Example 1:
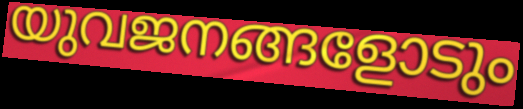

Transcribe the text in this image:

യുവജനങ്ങളോടും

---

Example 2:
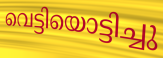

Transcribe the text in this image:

വെട്ടിയൊട്ടിച്ചു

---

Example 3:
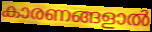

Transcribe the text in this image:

കാരണങ്ങളാൽ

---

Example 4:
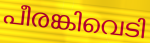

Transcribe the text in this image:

പീരങ്കിവെടി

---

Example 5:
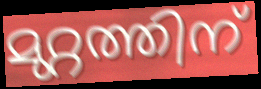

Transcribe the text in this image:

മുറ്റത്തിന്